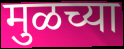
मुळच्या